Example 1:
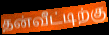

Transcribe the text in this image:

தன்வீட்டிற்கு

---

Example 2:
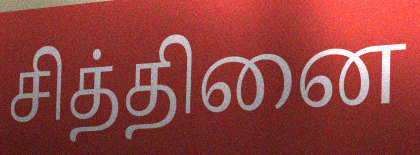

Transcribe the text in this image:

சித்தினை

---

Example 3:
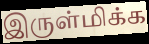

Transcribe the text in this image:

இருள்மிக்க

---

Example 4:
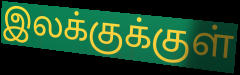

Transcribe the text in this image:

இலக்குக்குள்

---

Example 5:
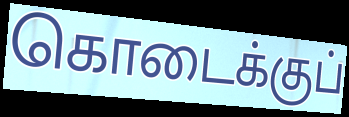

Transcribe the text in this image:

கொடைக்குப்